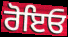
ਰੋਇਓ